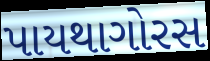
પાયથાગોરસ